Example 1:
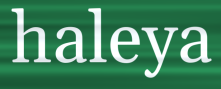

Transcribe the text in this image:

haleya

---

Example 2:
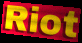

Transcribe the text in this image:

Riot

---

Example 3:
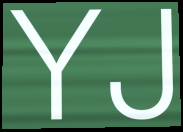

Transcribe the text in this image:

YJ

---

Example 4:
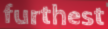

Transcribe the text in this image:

furthest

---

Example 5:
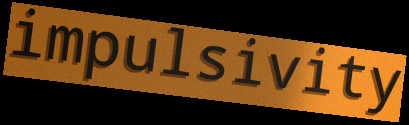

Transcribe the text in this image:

impulsivity